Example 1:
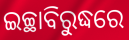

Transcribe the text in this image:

ଇଚ୍ଛାବିରୁଦ୍ଧରେ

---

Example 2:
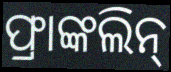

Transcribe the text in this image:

ଫ୍ରାଙ୍କଲିନ୍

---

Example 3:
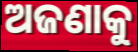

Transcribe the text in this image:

ଅଜଣାକୁ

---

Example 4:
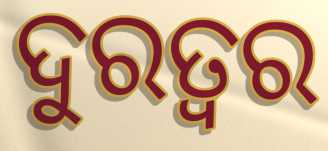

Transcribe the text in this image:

ଦୁରତ୍ଵର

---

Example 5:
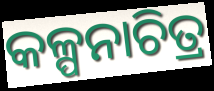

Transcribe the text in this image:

କଳ୍ପନାଚିତ୍ର